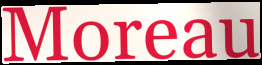
Moreau